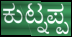
ಕುಟ್ನಪ್ಪ